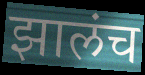
झालंच